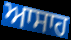
ਆਸਾਹ